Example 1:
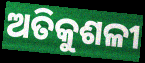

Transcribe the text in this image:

ଅତିକୁଶଳୀ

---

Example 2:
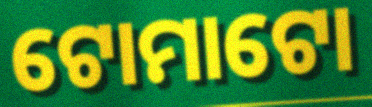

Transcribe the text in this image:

ଟୋମାଟୋ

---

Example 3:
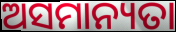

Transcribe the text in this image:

ଅସମାନ୍ୟତା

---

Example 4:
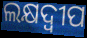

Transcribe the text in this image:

ଲକ୍ଷଦ୍ୱୀପ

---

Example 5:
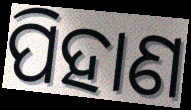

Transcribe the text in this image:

ପିହାଣ